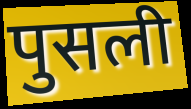
पुसली